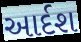
આર્દશ